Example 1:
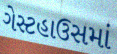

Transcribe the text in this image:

ગેસ્ટહાઉસમાં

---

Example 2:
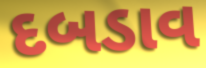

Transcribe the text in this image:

દબડાવ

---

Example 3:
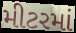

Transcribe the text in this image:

મીટરમાં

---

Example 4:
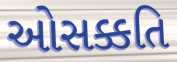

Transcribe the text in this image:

ઓસક્કતિ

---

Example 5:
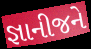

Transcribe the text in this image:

જ્ઞાનીજને